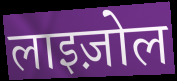
लाइज़ोल